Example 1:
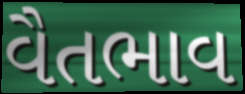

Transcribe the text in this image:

વૈતભાવ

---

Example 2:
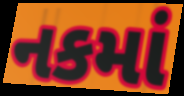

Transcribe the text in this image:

નકમાં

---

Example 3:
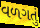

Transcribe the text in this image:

વળગતું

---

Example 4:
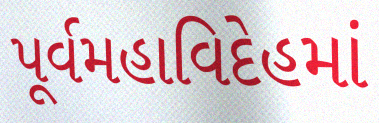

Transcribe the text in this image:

પૂર્વમહાવિદેહમાં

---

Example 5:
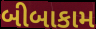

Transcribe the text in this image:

બીબાકામ